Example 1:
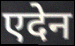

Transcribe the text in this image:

एदेन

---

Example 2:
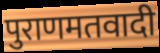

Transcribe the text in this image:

पुराणमतवादी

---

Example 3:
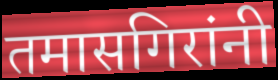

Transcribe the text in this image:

तमासगिरांनी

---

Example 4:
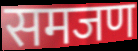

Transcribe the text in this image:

समजण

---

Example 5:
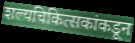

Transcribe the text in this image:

शल्यचिकित्सकांकडून